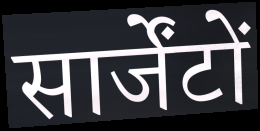
सार्जेंटों